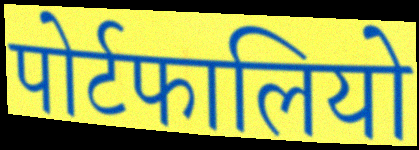
पोर्टफालियो